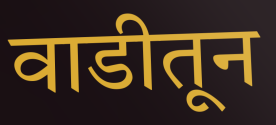
वाडीतून